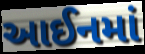
આઈનમાં